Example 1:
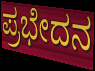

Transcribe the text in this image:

ಪ್ರಭೇದನ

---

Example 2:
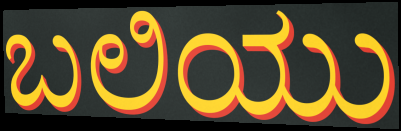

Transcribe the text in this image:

ಬಲಿಯು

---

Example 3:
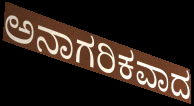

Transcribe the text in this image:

ಅನಾಗರಿಕವಾದ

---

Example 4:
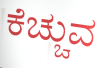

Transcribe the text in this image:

ಕೆಚ್ಚುವ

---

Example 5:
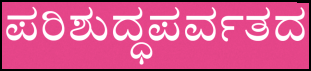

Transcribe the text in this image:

ಪರಿಶುದ್ಧಪರ್ವತದ